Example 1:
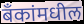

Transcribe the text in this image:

बँकांमधील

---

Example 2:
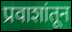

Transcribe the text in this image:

प्रवाशांतून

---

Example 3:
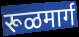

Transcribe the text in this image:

रूळमार्ग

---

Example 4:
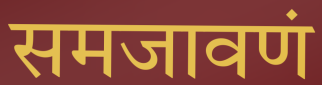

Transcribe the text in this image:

समजावणं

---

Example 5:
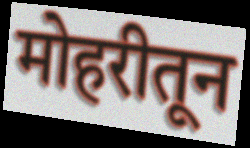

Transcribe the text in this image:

मोहरीतून